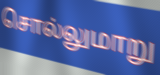
சொல்லுமாறு